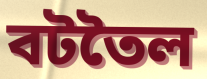
বটতৈল